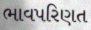
ભાવપરિણત